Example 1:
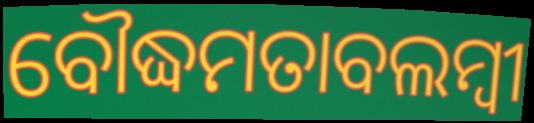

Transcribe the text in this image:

ବୌଦ୍ଧମତାବଲମ୍ବୀ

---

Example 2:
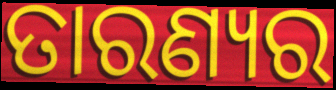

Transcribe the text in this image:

ତାରଣ୍ୟର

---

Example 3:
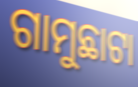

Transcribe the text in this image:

ଗାମୁଛାଟା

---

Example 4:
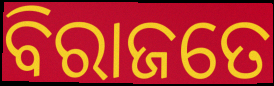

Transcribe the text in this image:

ବିରାଜତେ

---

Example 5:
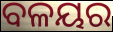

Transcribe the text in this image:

ବଳୟର